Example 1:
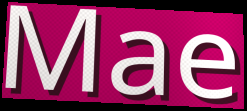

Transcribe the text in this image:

Mae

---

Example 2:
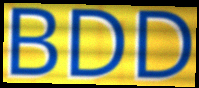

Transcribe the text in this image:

BDD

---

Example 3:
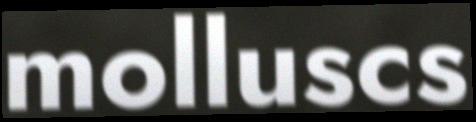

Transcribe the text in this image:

molluscs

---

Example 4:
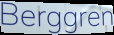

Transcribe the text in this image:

Berggren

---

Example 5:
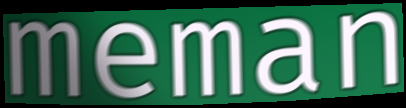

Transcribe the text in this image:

meman